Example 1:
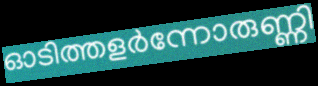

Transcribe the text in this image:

ഓടിത്തളർന്നോരുണ്ണി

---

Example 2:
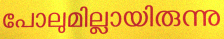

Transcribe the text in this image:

പോലുമില്ലായിരുന്നു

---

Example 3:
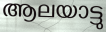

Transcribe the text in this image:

ആലയാട്ടു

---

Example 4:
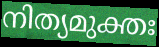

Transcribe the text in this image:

നിത്യമുക്തഃ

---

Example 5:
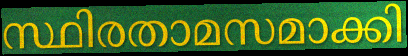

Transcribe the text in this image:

സ്ഥിരതാമസമാക്കി